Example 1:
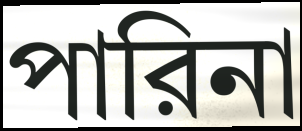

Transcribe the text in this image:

পারিনা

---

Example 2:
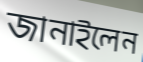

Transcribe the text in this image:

জানাইলেন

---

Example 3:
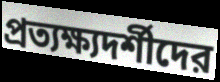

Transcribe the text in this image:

প্রত্যক্ষ্যদর্শীদের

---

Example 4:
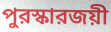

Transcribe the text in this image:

পুরস্কারজয়ী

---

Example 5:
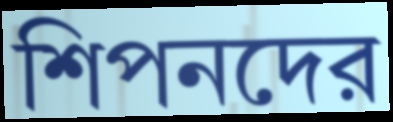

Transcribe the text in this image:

শিপনদের